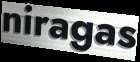
niragas